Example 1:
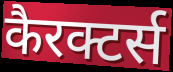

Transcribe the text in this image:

कैरक्टर्स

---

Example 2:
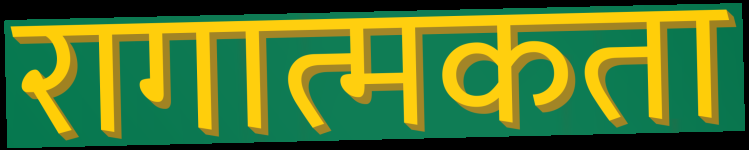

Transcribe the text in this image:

रागात्मकता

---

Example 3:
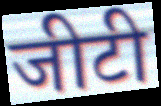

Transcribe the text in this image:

जीटी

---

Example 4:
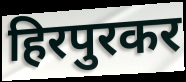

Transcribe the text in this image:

हिरपुरकर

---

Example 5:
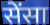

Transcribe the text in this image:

सेंसा